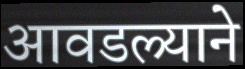
आवडल्याने